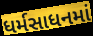
ધર્મસાધનમાં